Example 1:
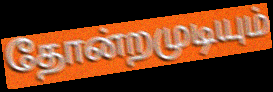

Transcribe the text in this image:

தோன்றமுடியும்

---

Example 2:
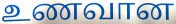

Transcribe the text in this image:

உணவான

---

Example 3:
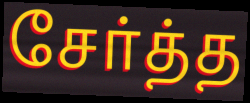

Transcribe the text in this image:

சேர்த்த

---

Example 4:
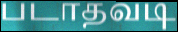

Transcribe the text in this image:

படாதவடி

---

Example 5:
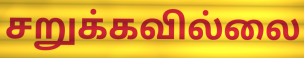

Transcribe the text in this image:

சறுக்கவில்லை